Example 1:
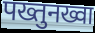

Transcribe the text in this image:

पख्तुनख्वा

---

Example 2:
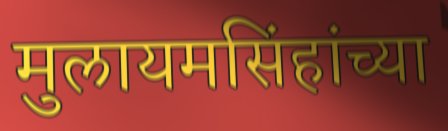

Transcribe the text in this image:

मुलायमसिंहांच्या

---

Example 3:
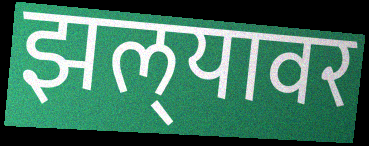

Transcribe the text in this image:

झल्यावर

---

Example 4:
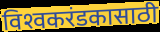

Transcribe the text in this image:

विश्वकरंडकासाठी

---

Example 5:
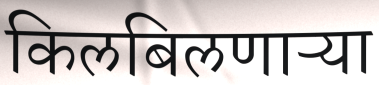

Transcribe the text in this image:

किलबिलणाऱ्या